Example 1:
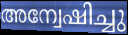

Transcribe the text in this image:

അന്വേഷിച്ചു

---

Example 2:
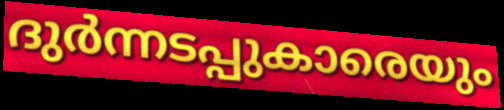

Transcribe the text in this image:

ദുർന്നടപ്പുകാരെയും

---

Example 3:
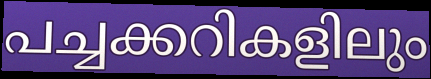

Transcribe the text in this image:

പച്ചക്കറികളിലും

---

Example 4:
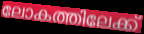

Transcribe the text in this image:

ലോകത്തിലേക്ക്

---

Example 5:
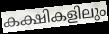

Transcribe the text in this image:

കക്ഷികളിലും